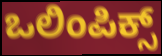
ಒಲಿಂಪಿಕ್ಸ್